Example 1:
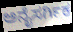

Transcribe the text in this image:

ಅನೈಸರ್ಗಿಕ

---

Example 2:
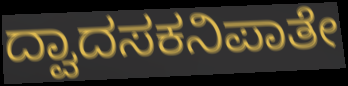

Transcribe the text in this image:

ದ್ವಾದಸಕನಿಪಾತೇ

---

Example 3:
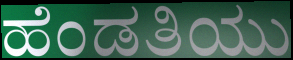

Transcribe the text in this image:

ಹೆಂಡತಿಯು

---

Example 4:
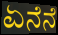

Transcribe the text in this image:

ಏನೆನೆ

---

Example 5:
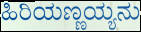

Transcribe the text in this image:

ಹಿರಿಯಣ್ಣಯ್ಯನು